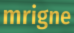
mrigne